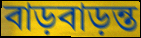
বাড়বাড়ন্ত